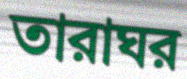
তারাঘর